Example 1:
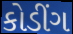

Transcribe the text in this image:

કોડીંગ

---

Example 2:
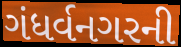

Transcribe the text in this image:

ગંધર્વનગરની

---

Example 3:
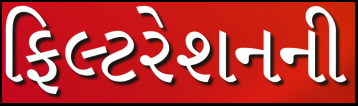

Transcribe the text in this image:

ફિલ્ટરેશનની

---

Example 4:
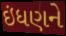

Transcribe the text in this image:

ઇંધણને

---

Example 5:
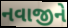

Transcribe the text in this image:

નવાજીને